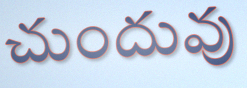
చుందువు